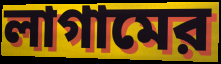
লাগামের